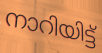
നാറിയിട്ട്